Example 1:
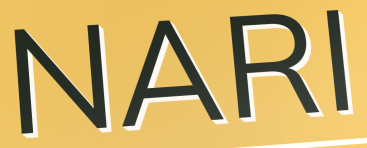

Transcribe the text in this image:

NARI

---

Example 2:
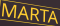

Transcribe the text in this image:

MARTA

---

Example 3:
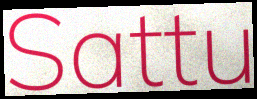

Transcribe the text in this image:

Sattu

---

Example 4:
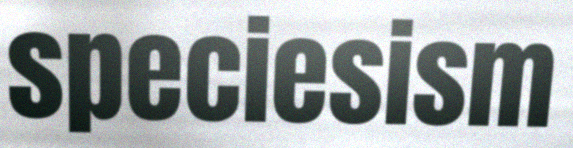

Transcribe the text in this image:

speciesism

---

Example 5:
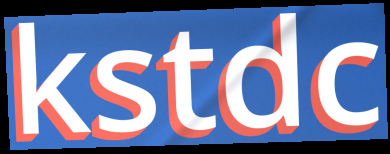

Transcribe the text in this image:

kstdc